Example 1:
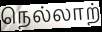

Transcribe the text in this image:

நெல்லாற்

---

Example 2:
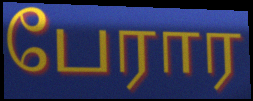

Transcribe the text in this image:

பேரார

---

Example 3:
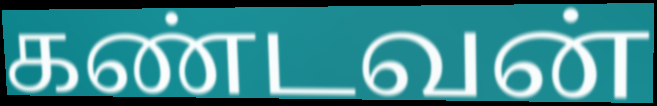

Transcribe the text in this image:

கண்டவன்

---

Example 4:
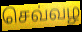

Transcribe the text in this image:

செவ்வழ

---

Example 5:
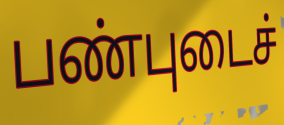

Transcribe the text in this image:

பண்புடைச்